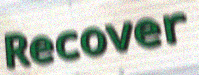
Recover